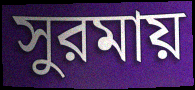
সুরমায়